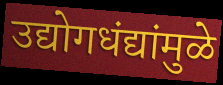
उद्योगधंद्यांमुळे